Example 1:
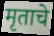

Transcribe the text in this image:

मृताचे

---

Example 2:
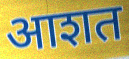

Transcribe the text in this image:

आशत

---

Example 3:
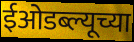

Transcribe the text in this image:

ईओडब्ल्यूच्या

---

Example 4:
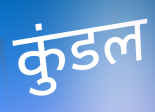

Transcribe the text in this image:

कुंडल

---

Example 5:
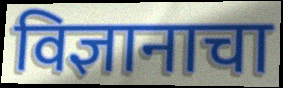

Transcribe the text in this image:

विज्ञानाचा